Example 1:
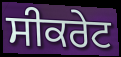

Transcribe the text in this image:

ਸੀਕਰੇਟ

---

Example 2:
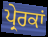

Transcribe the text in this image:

ਪ੍ਰੇਰਕਾਂ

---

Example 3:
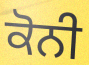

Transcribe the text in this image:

ਕੋਨੀ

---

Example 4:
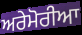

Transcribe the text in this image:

ਅਰੇਮੋਰੀਆ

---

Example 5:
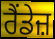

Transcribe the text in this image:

ਰੈਂਡੇਜ਼